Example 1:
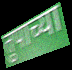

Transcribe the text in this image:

तुपाच्या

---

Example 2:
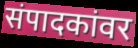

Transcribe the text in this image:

संपादकांवर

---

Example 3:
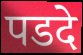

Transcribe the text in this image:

पडदे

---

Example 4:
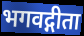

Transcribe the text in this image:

भगवद्गीता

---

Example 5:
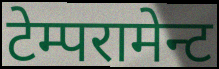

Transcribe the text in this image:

टेम्परामेन्ट